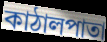
কাঠালপাতা